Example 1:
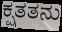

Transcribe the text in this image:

ಕ್ಷತತನು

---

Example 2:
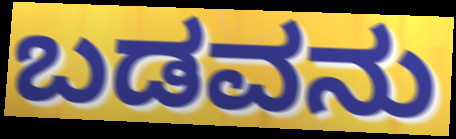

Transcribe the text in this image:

ಬಡವನು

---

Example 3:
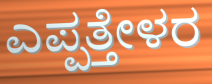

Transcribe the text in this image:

ಎಪ್ಪತ್ತೇಳರ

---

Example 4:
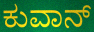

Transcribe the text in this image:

ಕುವಾನ್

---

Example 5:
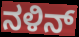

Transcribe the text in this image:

ನಳಿನ್